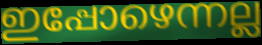
ഇപ്പോഴെന്നല്ല